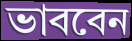
ভাববেন